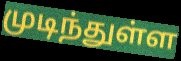
முடிந்துள்ள